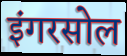
इंगरसोल